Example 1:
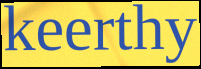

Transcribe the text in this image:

keerthy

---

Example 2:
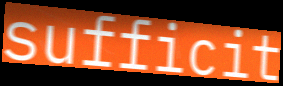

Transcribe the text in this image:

sufficit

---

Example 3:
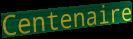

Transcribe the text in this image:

Centenaire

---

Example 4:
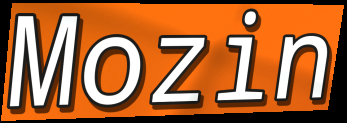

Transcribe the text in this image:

Mozin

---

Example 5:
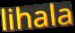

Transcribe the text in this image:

lihala